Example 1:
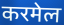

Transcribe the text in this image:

करमेल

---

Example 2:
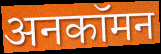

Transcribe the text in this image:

अनकॉमन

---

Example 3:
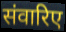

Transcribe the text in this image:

संवारिए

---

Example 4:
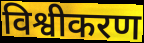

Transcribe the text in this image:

विश्वीकरण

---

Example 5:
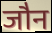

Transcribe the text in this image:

जौन